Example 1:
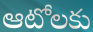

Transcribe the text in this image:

ఆటోలకు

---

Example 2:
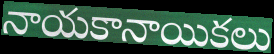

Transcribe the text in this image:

నాయకానాయికలు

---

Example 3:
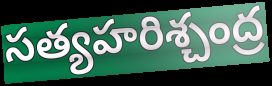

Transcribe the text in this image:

సత్యహరిశ్చంద్ర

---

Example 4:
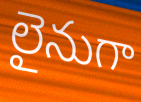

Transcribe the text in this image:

లైనుగా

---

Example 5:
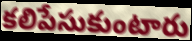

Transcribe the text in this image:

కలిపేసుకుంటారు